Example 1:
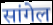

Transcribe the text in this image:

सांगेल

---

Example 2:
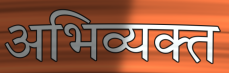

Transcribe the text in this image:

अभिव्यक्त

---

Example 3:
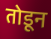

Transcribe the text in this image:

तोडून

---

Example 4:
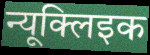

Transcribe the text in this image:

न्यूक्‍लिइक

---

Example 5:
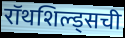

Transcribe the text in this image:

रॉथशिल्ड्सची